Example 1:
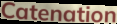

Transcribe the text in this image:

Catenation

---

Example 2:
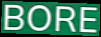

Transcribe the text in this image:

BORE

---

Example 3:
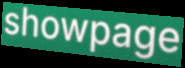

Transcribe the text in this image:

showpage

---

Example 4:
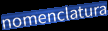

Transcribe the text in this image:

nomenclatura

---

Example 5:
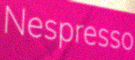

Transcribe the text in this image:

Nespresso